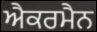
ਐਕਰਮੈਨ